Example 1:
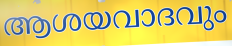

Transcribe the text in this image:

ആശയവാദവും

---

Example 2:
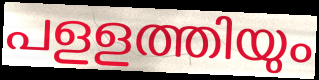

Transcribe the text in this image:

പളളത്തിയും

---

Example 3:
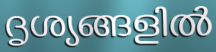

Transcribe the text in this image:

ദൃശ്യങ്ങളിൽ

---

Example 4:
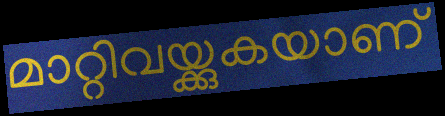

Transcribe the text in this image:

മാറ്റിവയ്ക്കുകയാണ്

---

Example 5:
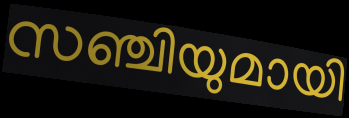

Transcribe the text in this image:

സഞ്ചിയുമായി